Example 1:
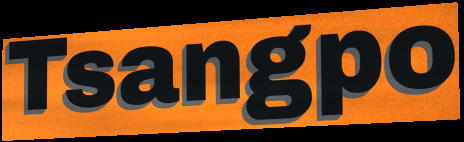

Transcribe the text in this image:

Tsangpo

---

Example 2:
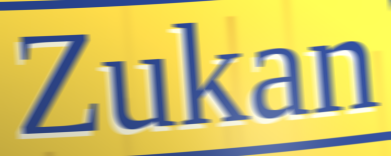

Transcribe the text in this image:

Zukan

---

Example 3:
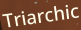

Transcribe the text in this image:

Triarchic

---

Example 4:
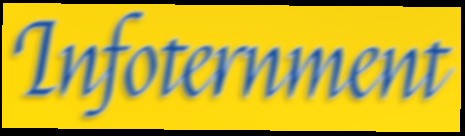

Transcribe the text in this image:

Infoternment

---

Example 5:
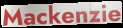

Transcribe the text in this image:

Mackenzie